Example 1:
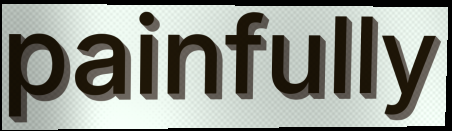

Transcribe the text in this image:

painfully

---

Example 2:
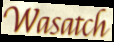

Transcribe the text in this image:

Wasatch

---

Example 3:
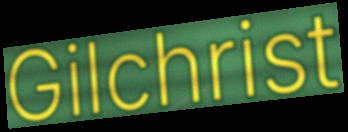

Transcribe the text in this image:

Gilchrist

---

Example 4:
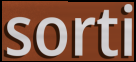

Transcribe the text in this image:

sorti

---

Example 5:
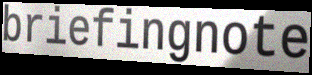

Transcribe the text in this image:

briefingnote